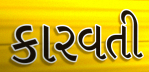
કારવતી